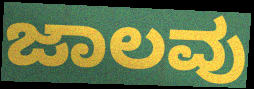
ಜಾಲವು